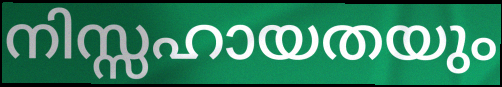
നിസ്സഹായതയും